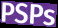
PSPs